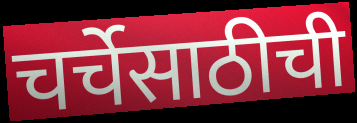
चर्चेसाठीची